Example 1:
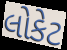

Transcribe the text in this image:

લોકેટ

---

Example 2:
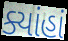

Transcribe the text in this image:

ક્યાંહાં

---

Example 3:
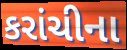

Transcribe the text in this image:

કરાંચીના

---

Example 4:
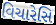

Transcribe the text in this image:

વિચારેસિ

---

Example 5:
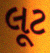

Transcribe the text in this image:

લૂટ